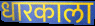
धारकाला